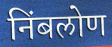
निंबलोण